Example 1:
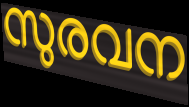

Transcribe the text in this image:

സുരവന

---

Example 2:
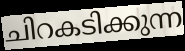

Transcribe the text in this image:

ചിറകടിക്കുന്ന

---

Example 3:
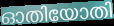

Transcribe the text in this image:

ഓതിയോതി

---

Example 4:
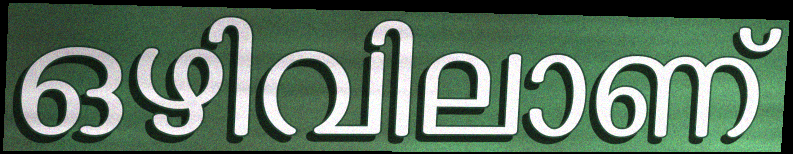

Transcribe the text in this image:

ഒഴിവിലാണ്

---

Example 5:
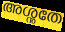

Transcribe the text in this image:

അശ്നുതേ